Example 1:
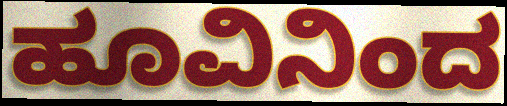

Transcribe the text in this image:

ಹೂವಿನಿಂದ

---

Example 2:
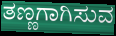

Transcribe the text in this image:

ತಣ್ಣಗಾಗಿಸುವ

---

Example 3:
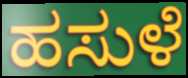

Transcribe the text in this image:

ಹಸುಳೆ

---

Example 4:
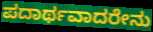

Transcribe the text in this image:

ಪದಾರ್ಥವಾದರೇನು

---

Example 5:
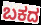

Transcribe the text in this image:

ಬಕದ